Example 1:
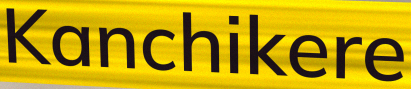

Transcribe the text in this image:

Kanchikere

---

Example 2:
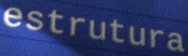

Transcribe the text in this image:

estrutura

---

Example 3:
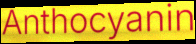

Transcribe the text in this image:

Anthocyanin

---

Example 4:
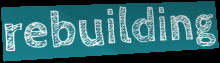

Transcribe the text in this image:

rebuilding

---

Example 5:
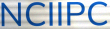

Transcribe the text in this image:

NCIIPC